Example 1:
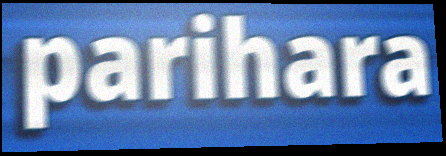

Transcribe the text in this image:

parihara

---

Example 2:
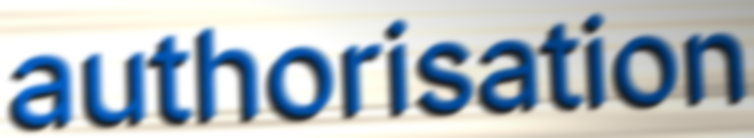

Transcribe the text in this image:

authorisation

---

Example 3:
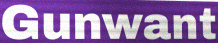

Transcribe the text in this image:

Gunwant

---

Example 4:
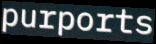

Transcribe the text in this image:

purports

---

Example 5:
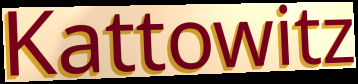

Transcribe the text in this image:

Kattowitz